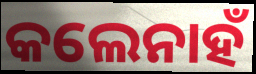
କଲେନାହଁ